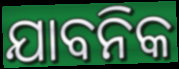
ଯାବନିକ